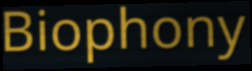
Biophony